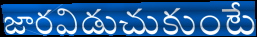
జారవిడుచుకుంటే